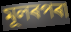
মূলৰপৰা